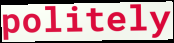
politely